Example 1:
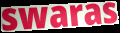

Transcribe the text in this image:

swaras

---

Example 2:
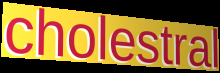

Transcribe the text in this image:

cholestral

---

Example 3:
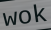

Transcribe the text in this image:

wok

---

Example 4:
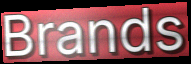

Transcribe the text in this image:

Brands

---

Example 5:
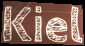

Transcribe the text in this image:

Kiel